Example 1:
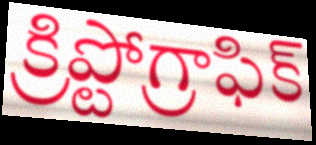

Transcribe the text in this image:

క్రిప్టోగ్రాఫిక్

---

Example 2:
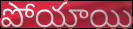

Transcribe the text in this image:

పోయాయి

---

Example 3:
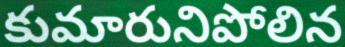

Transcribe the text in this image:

కుమారునిపోలిన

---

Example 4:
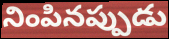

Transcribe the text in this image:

నింపినప్పుడు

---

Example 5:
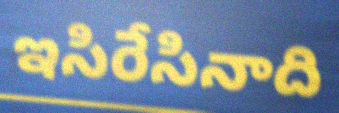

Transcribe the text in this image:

ఇసిరేసినాది